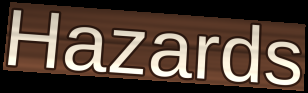
Hazards